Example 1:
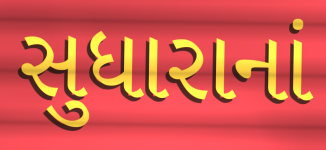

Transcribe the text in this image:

સુધારાનાં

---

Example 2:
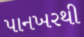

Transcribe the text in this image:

પાનખરથી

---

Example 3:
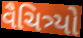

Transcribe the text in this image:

વૈચિત્ર્યો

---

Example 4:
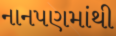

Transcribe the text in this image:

નાનપણમાંથી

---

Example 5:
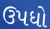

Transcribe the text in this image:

ઉપધો